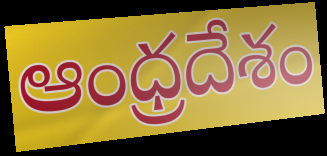
ఆంధ్రదేశం